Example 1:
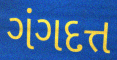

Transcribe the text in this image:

ગંગદત્ત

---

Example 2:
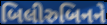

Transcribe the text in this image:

બિલીરુબિનને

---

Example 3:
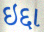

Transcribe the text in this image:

ઇદ્દા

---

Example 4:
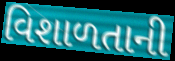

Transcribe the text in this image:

વિશાળતાની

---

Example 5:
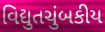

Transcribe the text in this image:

વિદ્યુતચુંબકીય